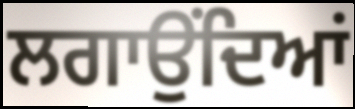
ਲਗਾਉੰਦਿਆਂ